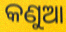
କଣୁଆ